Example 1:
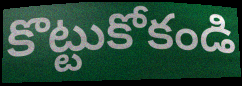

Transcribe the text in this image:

కొట్టుకోకండి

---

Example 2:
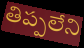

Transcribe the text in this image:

తిప్పలేని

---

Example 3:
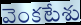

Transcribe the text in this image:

వెంకటేశు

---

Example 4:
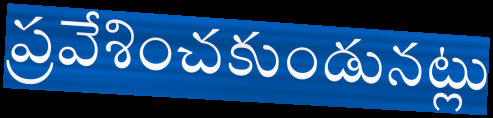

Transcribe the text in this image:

ప్రవేశించకుండునట్లు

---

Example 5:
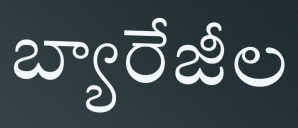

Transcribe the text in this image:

బ్యారేజీల